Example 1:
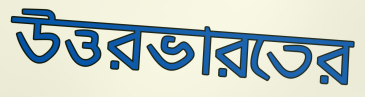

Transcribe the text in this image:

উত্তরভারতের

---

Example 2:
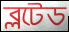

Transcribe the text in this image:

ব্লটেড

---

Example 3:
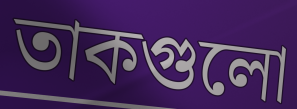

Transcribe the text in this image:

তাকগুলো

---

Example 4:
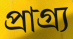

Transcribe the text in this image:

প্রাগ্র্য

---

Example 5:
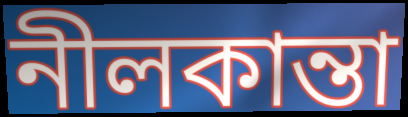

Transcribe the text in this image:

নীলকান্তা